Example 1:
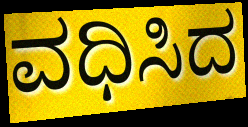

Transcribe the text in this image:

ವಧಿಸಿದ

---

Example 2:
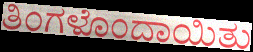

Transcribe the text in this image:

ತಿಂಗಳೊಂದಾಯಿತು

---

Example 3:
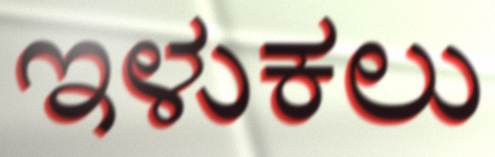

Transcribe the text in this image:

ಇಳುಕಲು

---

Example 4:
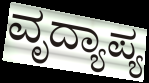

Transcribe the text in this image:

ವೃದ್ಯಾಪ್ಯ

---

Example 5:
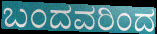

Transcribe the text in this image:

ಬಂದವರಿಂದ